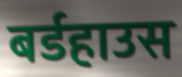
बर्डहाउस